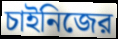
চাইনিজের